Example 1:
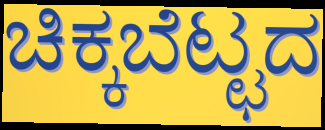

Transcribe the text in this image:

ಚಿಕ್ಕಬೆಟ್ಟದ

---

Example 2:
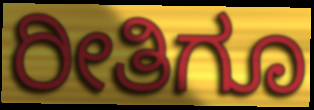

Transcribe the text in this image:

ರೀತಿಗೂ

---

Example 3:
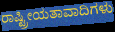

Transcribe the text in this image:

ರಾಷ್ಟ್ರೀಯತಾವಾದಿಗಳು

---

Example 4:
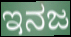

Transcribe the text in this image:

ಇನಜ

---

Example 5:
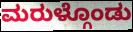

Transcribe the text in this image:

ಮರುಳ್ಗೊಂಡು